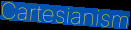
Cartesianism